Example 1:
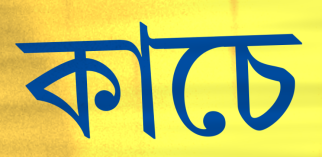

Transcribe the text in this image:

কাচে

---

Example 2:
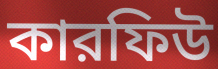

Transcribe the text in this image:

কারফিউ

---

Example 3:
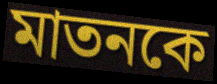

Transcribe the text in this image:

মাতনকে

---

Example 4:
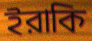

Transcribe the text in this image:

ইরাকি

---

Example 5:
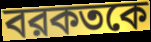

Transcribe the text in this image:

বরকতকে